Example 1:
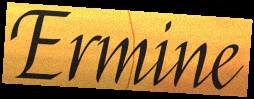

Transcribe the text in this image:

Ermine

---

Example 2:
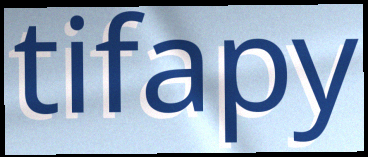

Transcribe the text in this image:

tifapy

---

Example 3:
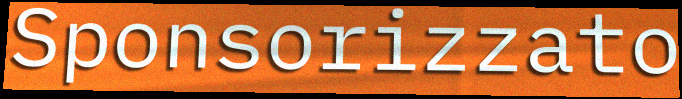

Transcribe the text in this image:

Sponsorizzato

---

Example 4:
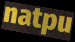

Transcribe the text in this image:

natpu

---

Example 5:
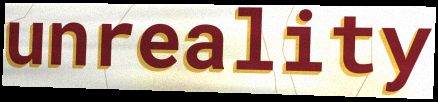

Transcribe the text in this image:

unreality